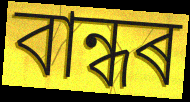
বান্ধৰ